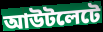
আউটলেটে